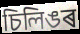
চিলিঙৰ